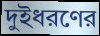
দুইধরণের